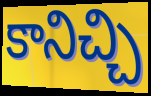
కానిచ్చి